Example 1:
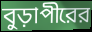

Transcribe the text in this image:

বুড়াপীরের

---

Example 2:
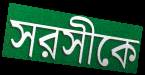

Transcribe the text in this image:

সরসীকে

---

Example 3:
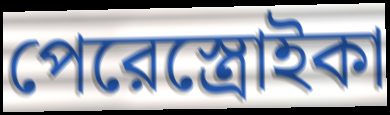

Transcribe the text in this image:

পেরেস্ত্রোইকা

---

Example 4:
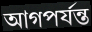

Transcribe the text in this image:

আগপর্যন্ত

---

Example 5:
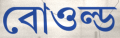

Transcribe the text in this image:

বোওল্ড